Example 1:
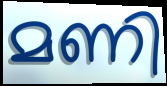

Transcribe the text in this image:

മണി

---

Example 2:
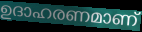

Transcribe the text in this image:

ഉദാഹരണമാണ്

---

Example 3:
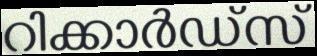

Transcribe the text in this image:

റിക്കാർഡ്സ്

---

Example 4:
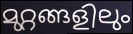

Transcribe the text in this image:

മുറ്റങ്ങളിലും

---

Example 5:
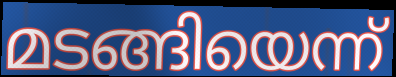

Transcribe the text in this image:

മടങ്ങിയെന്ന്